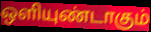
ஒளியுண்டாகும்